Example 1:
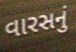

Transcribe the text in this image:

વારસનું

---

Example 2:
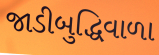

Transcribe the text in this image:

જાડીબુદ્ધિવાળા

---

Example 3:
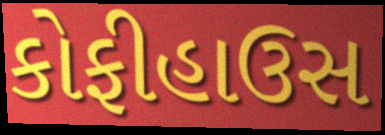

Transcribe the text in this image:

કોફીહાઉસ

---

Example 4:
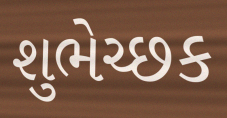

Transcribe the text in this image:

શુભેચ્છક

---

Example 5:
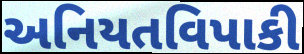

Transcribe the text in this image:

અનિયતવિપાકી